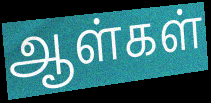
ஆள்கள்